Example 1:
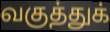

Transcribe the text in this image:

வகுத்துக்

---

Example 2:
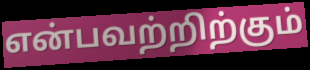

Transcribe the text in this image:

என்பவற்றிற்கும்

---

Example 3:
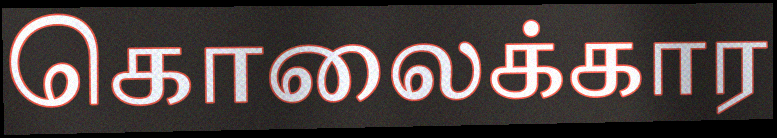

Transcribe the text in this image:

கொலைக்கார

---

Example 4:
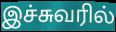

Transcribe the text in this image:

இச்சுவரில்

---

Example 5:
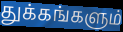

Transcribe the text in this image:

துக்கங்களும்